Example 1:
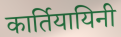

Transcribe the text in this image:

कार्तियायिनी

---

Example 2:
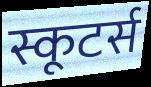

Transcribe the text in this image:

स्‍कूटर्स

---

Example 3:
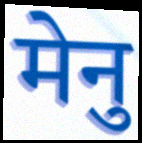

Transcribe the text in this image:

मेनु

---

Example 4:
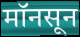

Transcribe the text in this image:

मॉनसून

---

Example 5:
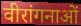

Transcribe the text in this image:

वीरांगनाओं